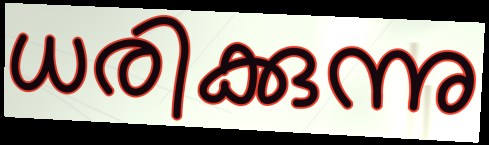
ധരിക്കുന്നു